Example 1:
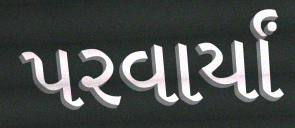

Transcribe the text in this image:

પરવાર્યાં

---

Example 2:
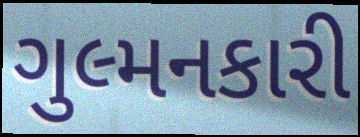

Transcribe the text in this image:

ગુલ્મનકારી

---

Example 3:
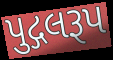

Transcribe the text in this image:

પુદ્ગલરૂપ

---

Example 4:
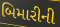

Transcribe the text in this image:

બિમારીની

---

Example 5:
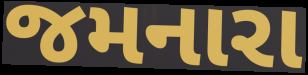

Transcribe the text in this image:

જમનારા